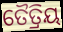
ତୈତ୍ରିୟ